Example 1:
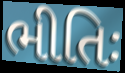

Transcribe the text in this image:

ભીતિઃ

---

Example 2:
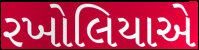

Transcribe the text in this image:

રખોલિયાએ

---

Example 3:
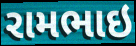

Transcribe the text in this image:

રામભાઇ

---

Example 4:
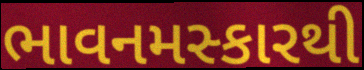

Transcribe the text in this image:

ભાવનમસ્કારથી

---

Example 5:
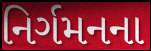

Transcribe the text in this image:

નિર્ગમનના